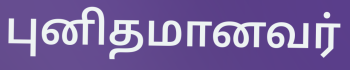
புனிதமானவர்